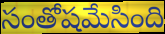
సంతోషమేసింది